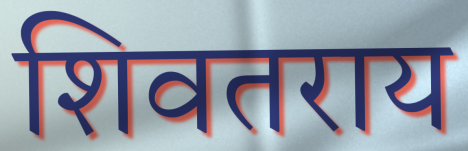
शिवतराय